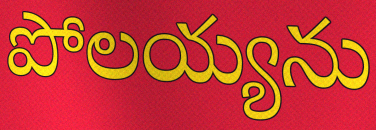
పోలయ్యను